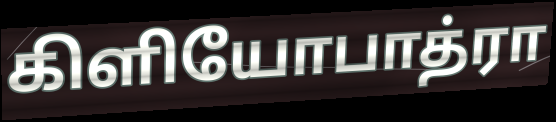
கிளியோபாத்ரா